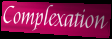
Complexation